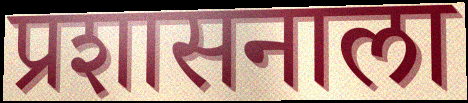
प्रशासनाला